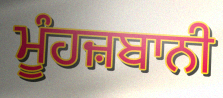
ਮੂੰਹਜ਼ਬਾਨੀ